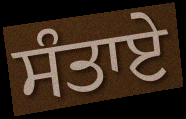
ਸੰਤਾਏ